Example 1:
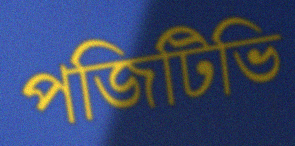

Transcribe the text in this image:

পজিটিভি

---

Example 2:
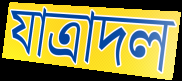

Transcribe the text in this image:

যাত্রাদল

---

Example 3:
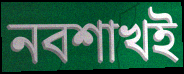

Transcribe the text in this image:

নবশাখই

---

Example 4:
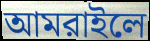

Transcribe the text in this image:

আমরাইলে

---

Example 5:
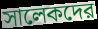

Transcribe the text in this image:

সালেকদের